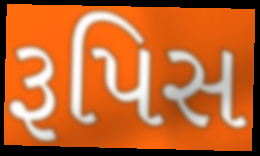
રૂપિસ